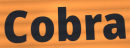
Cobra